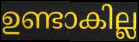
ഉണ്ടാകില്ല